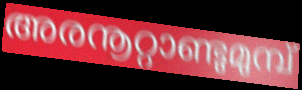
അരനൂറ്റാണ്ടുമുമ്പ്